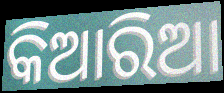
କିଆରିଆ